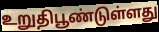
உறுதிபூண்டுள்ளது